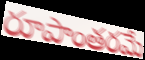
రూపాంతరమే